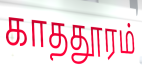
காததூரம்